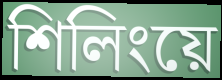
শিলিংয়ে